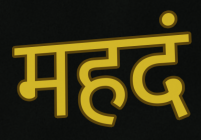
महदं